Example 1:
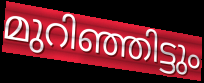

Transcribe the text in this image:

മുറിഞ്ഞിട്ടും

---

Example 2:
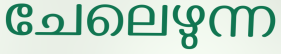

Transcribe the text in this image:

ചേലെഴുന്ന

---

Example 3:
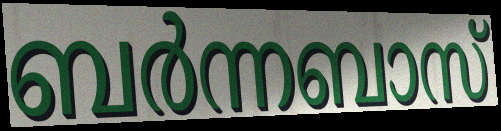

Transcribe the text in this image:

ബർന്നബാസ്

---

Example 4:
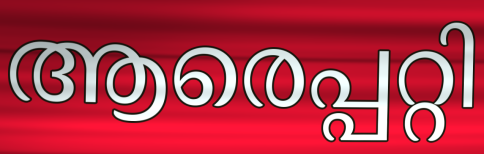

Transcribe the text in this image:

ആരെപ്പറ്റി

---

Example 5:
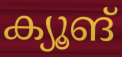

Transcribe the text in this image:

ക്യൂങ്